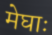
मेघाः